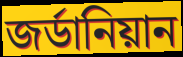
জর্ডানিয়ান